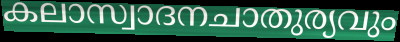
കലാസ്വാദനചാതുര്യവും